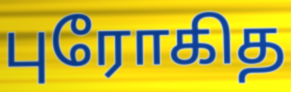
புரோகித